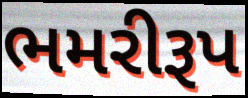
ભમરીરૂપ